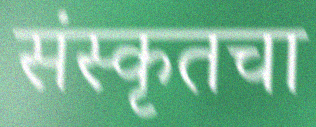
संस्कृतचा